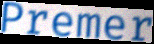
Premer